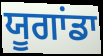
ਯੂਗਾਂਡਾ